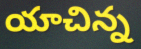
యాచిన్న